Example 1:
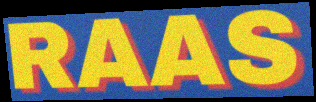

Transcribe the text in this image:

RAAS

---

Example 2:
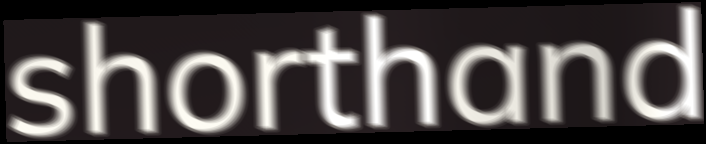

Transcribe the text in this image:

shorthand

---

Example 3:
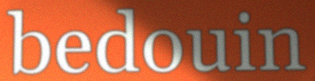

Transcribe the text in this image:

bedouin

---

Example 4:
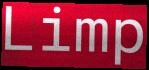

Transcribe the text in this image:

Limp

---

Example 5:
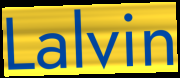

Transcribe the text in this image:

Lalvin